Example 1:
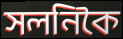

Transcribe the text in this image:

সলনিকৈ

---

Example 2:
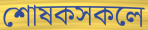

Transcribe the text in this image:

শোষকসকলে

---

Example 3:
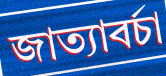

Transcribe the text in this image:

জাত্যাবৰ্চা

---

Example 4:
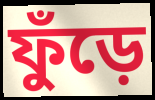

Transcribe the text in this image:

ফুঁড়ে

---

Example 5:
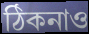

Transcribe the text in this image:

ঠিকনাও